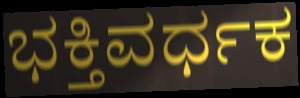
ಭಕ್ತಿವರ್ಧಕ